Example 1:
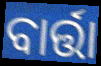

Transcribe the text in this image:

ବାର୍ତ୍ତା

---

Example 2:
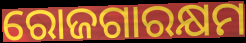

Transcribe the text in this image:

ରୋଜଗାରକ୍ଷମ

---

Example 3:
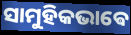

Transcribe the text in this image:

ସାମୁହିକଭାଵେ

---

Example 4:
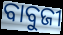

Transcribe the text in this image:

ବାବୁଜୀ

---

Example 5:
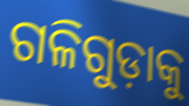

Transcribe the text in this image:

ଗଳିଗୁଡ଼ାକୁ